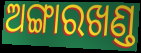
ଅଙ୍ଗାରଖଣ୍ଡ